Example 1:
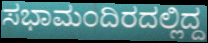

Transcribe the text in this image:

ಸಭಾಮಂದಿರದಲ್ಲಿದ್ದ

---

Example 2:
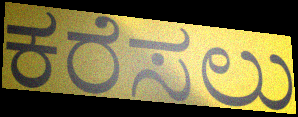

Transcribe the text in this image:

ಕರೆಸಲು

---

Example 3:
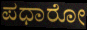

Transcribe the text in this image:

ಪಧಾರೋ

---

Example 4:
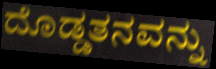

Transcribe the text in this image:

ದೊಡ್ಡತನವನ್ನು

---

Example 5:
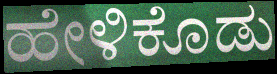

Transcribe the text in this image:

ಹೇಳಿಕೊಡು